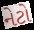
નેટો